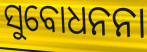
ସୁବୋଧନନା